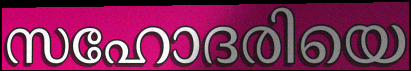
സഹോദരിയെ